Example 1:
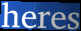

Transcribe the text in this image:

heres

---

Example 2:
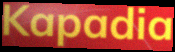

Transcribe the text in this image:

Kapadia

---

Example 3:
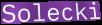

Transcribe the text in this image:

Solecki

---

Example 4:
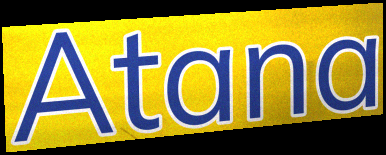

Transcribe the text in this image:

Atana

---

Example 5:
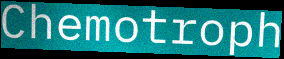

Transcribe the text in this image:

Chemotroph